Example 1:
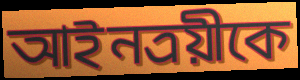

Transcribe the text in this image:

আইনত্রয়ীকে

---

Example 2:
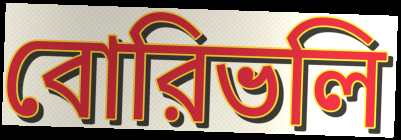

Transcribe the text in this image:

বোরিভলি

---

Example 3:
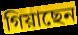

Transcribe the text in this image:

গিয়াছেন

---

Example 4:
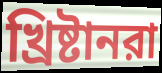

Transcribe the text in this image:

খ্রিষ্টানরা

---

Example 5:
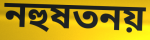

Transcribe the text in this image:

নহুষতনয়